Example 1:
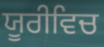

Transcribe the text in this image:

ਯੂਰੀਵਿਚ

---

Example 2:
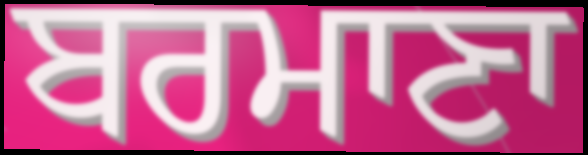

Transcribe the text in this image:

ਬਰਮਾਣਾ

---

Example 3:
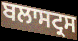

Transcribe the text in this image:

ਬਲਾਸਟ੍ਰਸ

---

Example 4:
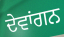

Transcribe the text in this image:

ਦੇਵਾਂਗਨ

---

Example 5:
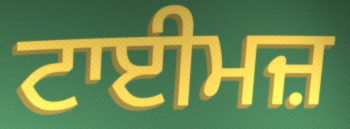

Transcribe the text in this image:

ਟਾਈਮਜ਼